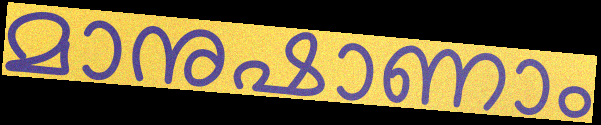
മാനുഷാണാം